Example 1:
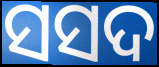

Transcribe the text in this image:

ସସଦ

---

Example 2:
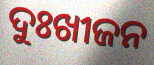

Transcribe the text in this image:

ଦୁଃଖୀଜନ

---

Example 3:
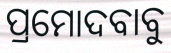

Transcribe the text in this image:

ପ୍ରମୋଦବାବୁ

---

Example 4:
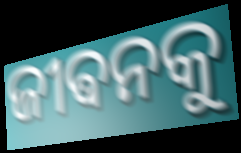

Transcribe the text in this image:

ଜୀଵନକୁ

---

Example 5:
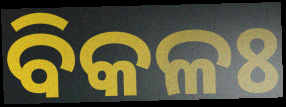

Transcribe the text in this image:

ବିକଳଃ